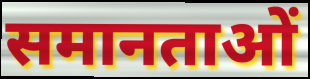
समानताओं